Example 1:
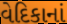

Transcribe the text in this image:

વેદિકાનાં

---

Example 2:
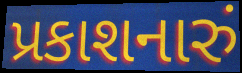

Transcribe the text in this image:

પ્રકાશનારું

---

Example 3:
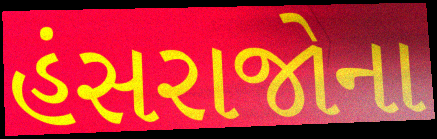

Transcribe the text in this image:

હંસરાજોના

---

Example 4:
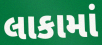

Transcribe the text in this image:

લાકામાં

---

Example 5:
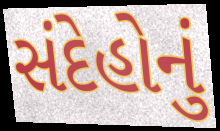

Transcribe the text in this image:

સંદેહોનું